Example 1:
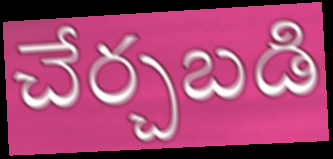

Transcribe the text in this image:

చేర్చబడి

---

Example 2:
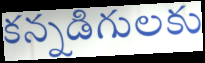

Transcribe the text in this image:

కన్నడిగులకు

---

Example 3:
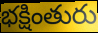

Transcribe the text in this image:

భక్షింతురు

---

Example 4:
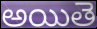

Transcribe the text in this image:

అయితె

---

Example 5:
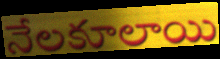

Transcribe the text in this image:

నేలకూలాయి